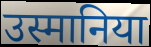
उस्मानिया